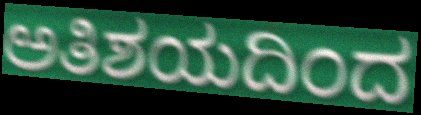
ಅತಿಶಯದಿಂದ